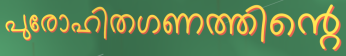
പുരോഹിതഗണത്തിന്റെ